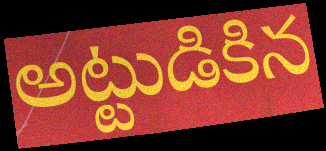
అట్టుడికిన